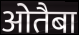
ओतैबा